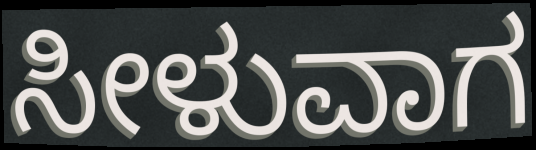
ಸೀಳುವಾಗ